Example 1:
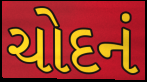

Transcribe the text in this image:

ચોદનં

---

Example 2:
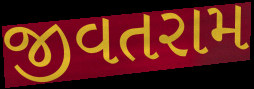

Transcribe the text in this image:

જીવતરામ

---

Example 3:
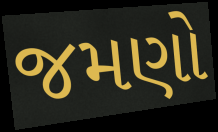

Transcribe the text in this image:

જમણો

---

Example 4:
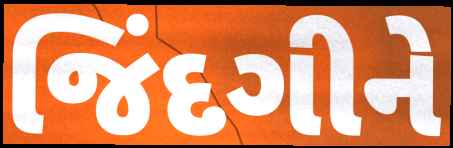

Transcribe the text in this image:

જિંદગીને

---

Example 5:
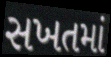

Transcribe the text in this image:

સખતમાં